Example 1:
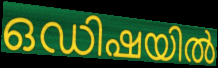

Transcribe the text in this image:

ഒഡിഷയിൽ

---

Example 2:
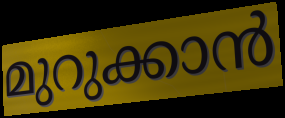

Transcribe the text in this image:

മുറുക്കാൻ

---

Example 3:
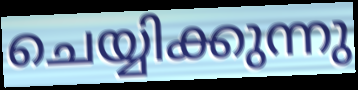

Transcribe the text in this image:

ചെയ്യിക്കുന്നു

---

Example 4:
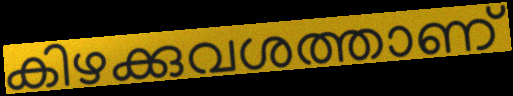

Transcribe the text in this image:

കിഴക്കുവശത്താണ്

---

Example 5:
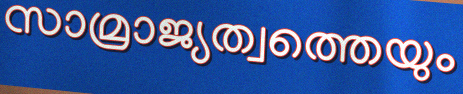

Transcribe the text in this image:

സാമ്രാജ്യത്വത്തെയും